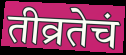
तीव्रतेचं